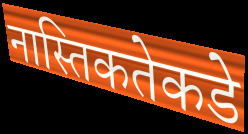
नास्तिकतेकडे